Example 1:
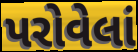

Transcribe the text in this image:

પરોવેલાં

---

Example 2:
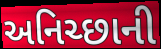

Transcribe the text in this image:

અનિચ્છાની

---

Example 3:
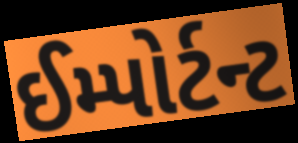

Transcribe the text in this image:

ઈમ્પોર્ટન્ટ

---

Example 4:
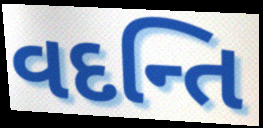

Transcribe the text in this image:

વદન્તિ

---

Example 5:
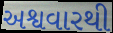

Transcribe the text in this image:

અશ્વવારથી